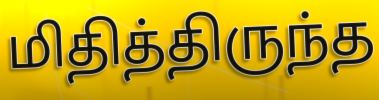
மிதித்திருந்த